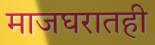
माजघरातही